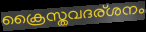
ക്രൈസ്തവദര്ശനം